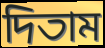
দিতাম